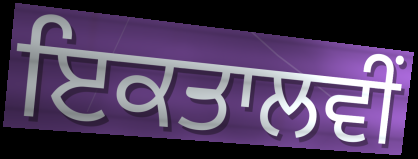
ਇਕਤਾਲਵੀਂ